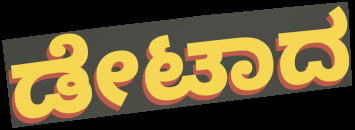
ಡೇಟಾದ